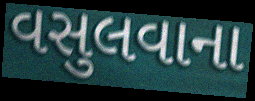
વસુલવાના